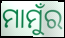
ମାମୁଁର